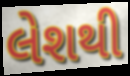
લેશથી